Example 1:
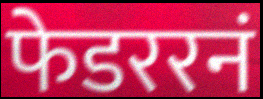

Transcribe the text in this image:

फेडररनं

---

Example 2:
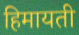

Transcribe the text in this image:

हिमायती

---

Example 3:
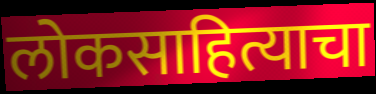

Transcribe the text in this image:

लोकसाहित्याचा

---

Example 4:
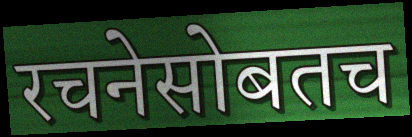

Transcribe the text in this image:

रचनेसोबतच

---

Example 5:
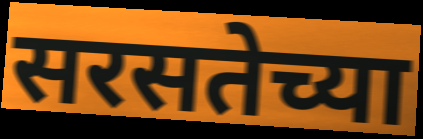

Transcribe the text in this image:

सरसतेच्या